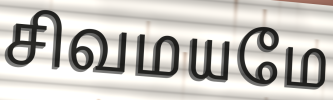
சிவமயமே